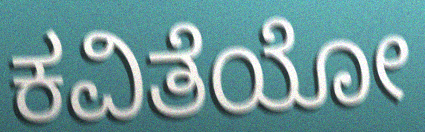
ಕವಿತೆಯೋ